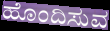
ಹೊಂದಿಸುವ